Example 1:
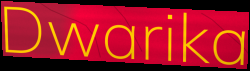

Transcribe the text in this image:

Dwarika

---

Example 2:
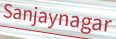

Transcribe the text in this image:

Sanjaynagar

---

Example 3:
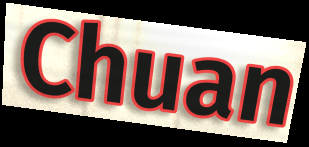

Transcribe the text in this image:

Chuan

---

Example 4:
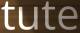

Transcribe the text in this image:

tute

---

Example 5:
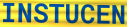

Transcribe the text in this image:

INSTUCEN